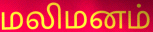
மலிமனம்